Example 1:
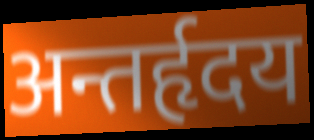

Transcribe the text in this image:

अन्तर्हृदय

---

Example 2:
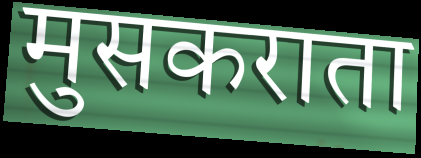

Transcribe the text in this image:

मुसकराता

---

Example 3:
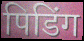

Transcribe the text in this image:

पिडिंग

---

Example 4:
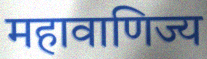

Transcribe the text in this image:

महावाणिज्‍य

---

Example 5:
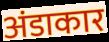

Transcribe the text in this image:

अंडाकार